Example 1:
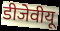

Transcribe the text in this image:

डीजेवीयू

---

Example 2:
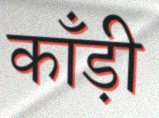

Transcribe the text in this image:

काँड़ी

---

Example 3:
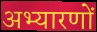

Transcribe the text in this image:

अभ्यारणों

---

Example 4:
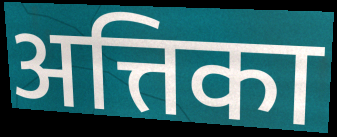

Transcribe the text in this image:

अत्तिका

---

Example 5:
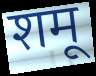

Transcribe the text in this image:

शमू